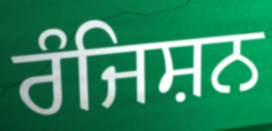
ਰੰਜਿਸ਼ਨ